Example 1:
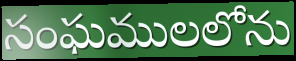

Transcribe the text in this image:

సంఘములలోను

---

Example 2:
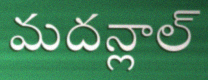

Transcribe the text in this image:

మదన్లాల్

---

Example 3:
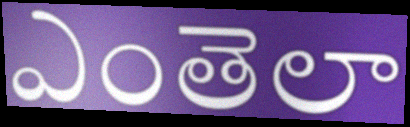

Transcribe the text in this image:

ఎంతెలా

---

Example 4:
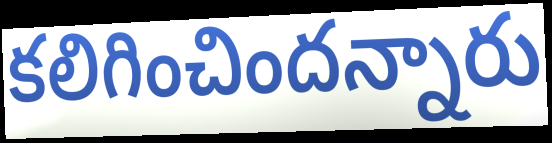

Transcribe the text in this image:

కలిగించిందన్నారు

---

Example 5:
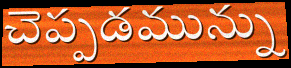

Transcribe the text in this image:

చెప్పడమున్ను